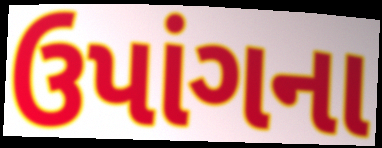
ઉપાંગના